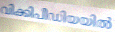
വിക്കിപീഡിയയിൽ